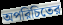
অপরিচিতের